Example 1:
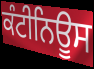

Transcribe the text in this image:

ਕੰਟੀਨਿਊਸ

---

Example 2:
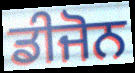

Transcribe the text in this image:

ਡੀਜੋਨ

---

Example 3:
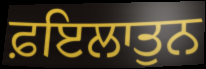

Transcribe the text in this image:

ਫ਼ਇਲਾਤੁਨ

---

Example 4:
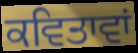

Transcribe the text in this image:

ਕਵਿਤਾਵਾਂ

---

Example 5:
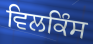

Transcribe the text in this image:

ਵਿਲਕਿੰਸ